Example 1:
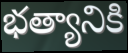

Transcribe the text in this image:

భత్యానికి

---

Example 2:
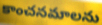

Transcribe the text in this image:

కాంచనమాలను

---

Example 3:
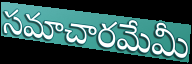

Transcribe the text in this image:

సమాచారమేమీ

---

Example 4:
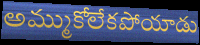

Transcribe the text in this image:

అమ్ముకోలేకపోయాడు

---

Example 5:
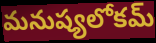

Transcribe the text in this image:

మనుష్యలోకమ్